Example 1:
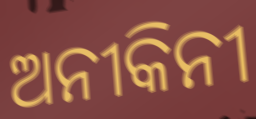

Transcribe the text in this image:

ଅନୀକିନୀ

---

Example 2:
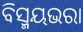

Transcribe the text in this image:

ବିସ୍ମୟଭରା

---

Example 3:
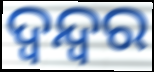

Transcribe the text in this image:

ଦ୍ଵନ୍ଦ୍ୱର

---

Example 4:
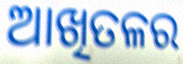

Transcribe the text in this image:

ଆଖିତଳର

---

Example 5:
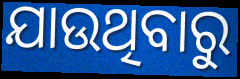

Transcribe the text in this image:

ଯାଉଥିବାରୁ